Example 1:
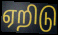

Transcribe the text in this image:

ஏறிடு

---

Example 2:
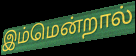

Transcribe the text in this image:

இம்மென்றால்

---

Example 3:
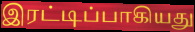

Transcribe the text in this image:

இரட்டிப்பாகியது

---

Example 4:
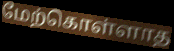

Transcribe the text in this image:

மேற்கொள்ளாத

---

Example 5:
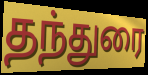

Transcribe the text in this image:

தந்துரை